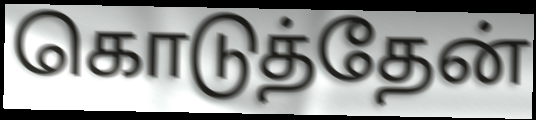
கொடுத்தேன்